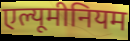
एल्यूमीनियम